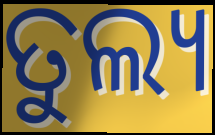
ତୁଲ୍ୟ